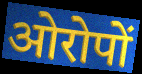
ओरोपों